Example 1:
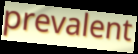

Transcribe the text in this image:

prevalent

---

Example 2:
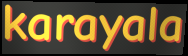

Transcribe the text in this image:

karayala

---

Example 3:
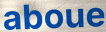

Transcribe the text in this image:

aboue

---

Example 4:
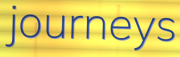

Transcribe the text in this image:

journeys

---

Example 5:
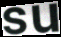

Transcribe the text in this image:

su